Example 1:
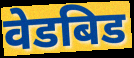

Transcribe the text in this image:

वेडबिड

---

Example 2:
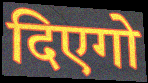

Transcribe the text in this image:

दिएगो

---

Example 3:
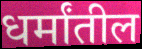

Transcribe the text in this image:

धर्मांतील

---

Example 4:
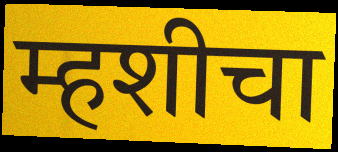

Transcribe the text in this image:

म्हशीचा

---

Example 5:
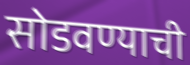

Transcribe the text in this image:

सोडवण्याची